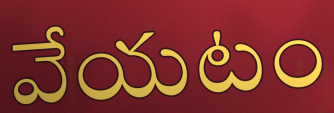
వేయటం